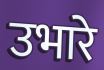
उभारे